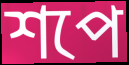
শপে